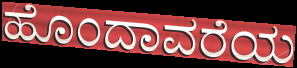
ಹೊಂದಾವರೆಯ